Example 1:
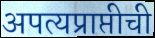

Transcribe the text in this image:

अपत्यप्राप्तीची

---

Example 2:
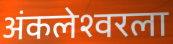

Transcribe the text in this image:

अंकलेश्वरला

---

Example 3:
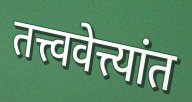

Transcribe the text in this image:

तत्त्ववेत्त्यांत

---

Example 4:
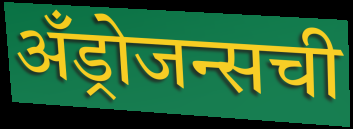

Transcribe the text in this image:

अँड्रोजन्सची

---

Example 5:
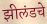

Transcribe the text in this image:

झीलंडचे